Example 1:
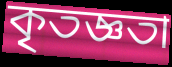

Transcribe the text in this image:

কৃতজ্ঞতা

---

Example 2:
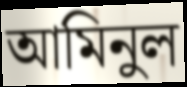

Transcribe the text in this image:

আমিনুল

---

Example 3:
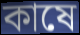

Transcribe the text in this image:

কাষে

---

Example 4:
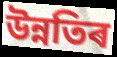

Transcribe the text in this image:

উন্নতিৰ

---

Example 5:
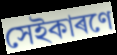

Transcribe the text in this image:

সেইকাৰণে